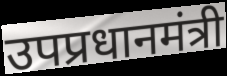
उपप्रधानमंत्री